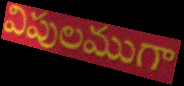
విపులముగా